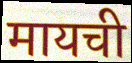
मायची